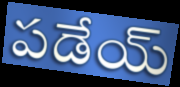
పడేయ్